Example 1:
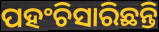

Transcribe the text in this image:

ପହଂଚିସାରିଛନ୍ତି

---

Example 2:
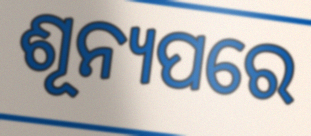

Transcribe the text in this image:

ଶୂନ୍ୟପରେ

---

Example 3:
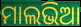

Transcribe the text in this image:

ମାଲଭିଆ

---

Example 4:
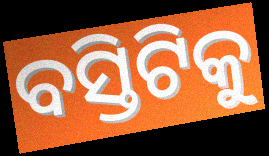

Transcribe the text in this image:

ବସ୍ତିଟିକୁ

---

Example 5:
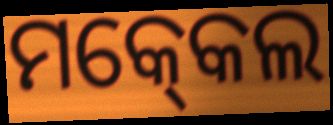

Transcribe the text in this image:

ମକ୍‍କେଲ